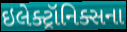
ઇલેક્ટ્રૉનિક્સના